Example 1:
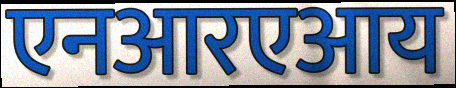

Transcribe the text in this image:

एनआरएआय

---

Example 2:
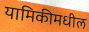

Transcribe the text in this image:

यामिकीमधील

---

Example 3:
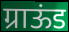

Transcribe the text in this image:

ग्राऊंड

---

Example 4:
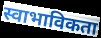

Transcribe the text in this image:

स्वाभाविकता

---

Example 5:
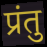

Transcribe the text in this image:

प्रंतु